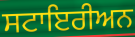
ਸਟਾਇਰੀਅਨ